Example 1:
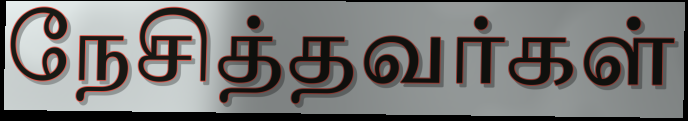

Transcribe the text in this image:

நேசித்தவர்கள்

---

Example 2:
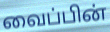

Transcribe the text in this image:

வைப்பின்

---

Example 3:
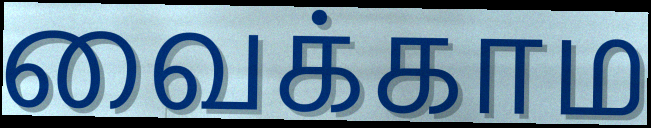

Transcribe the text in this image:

வைக்காம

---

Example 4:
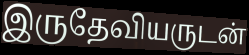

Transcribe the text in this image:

இருதேவியருடன்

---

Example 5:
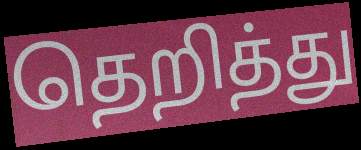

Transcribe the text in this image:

தெறித்து